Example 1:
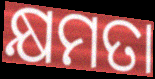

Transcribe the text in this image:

କ୍ଷମତା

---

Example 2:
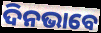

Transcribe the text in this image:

ଦିନଭାବେ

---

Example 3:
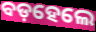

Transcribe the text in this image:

ବଡ଼ହେଲେ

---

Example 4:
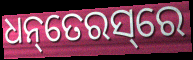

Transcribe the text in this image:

ଧନ୍‌ତେରସ୍‌ରେ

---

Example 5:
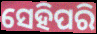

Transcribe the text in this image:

ସେହିପରି